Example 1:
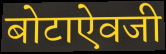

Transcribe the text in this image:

बोटाऐवजी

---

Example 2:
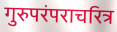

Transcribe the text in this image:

गुरुपरंपराचरित्र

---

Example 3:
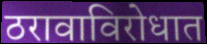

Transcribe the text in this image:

ठरावाविरोधात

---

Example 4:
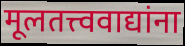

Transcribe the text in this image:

मूलतत्त्ववाद्यांना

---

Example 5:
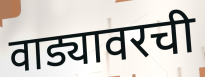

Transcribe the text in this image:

वाड्यावरची